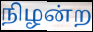
நிழன்ற